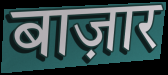
बाज़ार